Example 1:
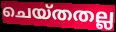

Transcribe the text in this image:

ചെയ്തതല്ല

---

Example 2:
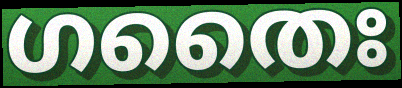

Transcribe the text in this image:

ഗതൈഃ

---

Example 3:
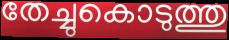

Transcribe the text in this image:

തേച്ചുകൊടുത്തു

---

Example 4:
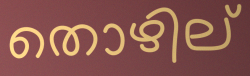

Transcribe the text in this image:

തൊഴില്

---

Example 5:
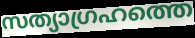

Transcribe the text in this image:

സത്യാഗ്രഹത്തെ